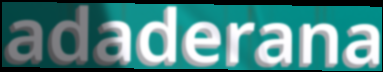
adaderana